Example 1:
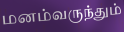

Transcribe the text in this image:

மனம்வருந்தும்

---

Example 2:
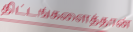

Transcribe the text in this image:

திட்டங்களைத்தான்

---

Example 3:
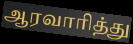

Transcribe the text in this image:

ஆரவாரித்து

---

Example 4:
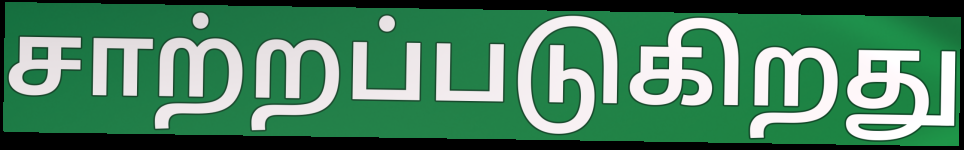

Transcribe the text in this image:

சாற்றப்படுகிறது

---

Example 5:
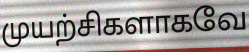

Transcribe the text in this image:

முயற்சிகளாகவே